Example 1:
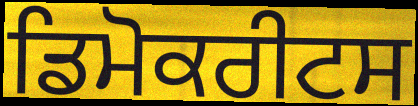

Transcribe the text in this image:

ਡਿਮੋਕਰੀਟਸ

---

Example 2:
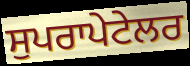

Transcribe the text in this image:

ਸੁਪਰਾਪੇਟੇਲਰ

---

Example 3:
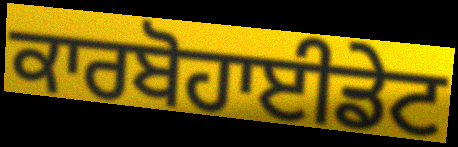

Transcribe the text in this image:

ਕਾਰਬੋਹਾਈਡੇਟ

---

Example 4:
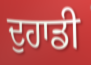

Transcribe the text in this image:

ਦੁਹਾਡੀ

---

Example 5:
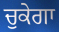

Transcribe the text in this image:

ਚੁਕੇਗਾ